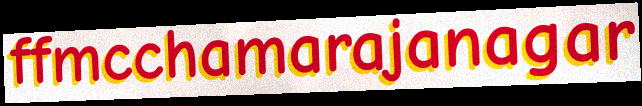
ffmcchamarajanagar